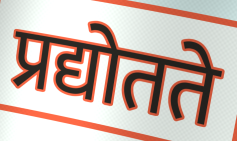
प्रद्योतते